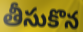
తీసుకొన